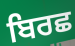
ਬਿਰਛ